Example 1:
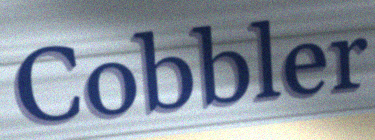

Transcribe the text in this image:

Cobbler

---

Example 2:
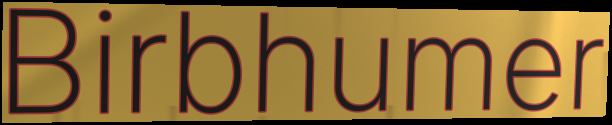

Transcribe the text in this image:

Birbhumer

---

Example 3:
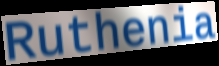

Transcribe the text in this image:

Ruthenia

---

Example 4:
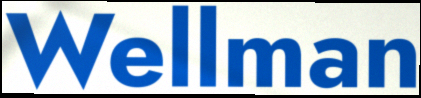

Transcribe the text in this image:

Wellman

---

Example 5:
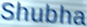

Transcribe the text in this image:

Shubha